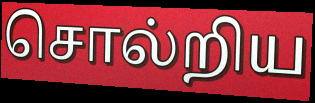
சொல்றிய